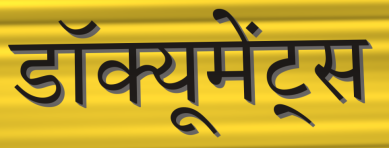
डॉक्यूमेंट्स